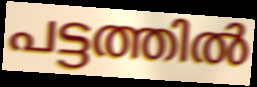
പട്ടത്തിൽ